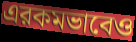
এরকমভাবেও